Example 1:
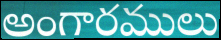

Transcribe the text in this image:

అంగారములు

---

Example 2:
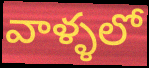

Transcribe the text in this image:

వాళ్ళలో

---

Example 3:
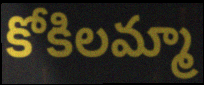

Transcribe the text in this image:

కోకిలమ్మా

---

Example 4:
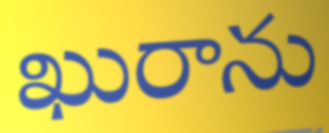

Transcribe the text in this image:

ఖురాను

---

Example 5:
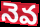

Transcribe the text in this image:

నెవ